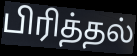
பிரித்தல்